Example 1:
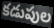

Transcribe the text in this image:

కడుపుల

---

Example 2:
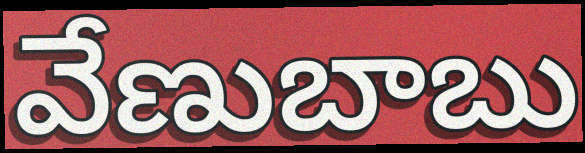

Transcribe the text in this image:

వేణుబాబు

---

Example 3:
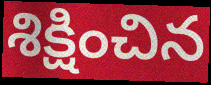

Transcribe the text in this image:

శిక్షించిన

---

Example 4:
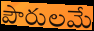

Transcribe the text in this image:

పౌరులమే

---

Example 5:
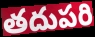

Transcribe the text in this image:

తదుపరి